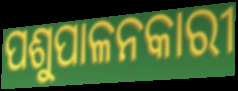
ପଶୁପାଳନକାରୀ